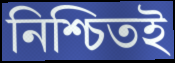
নিশ্চিতই